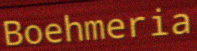
Boehmeria